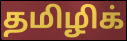
தமிழிக்